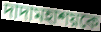
দাদামহাশয়কে